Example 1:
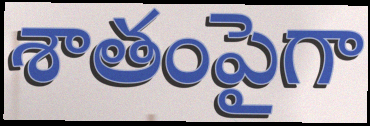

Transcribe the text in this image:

శాతంపైగా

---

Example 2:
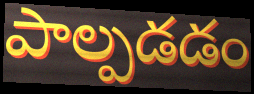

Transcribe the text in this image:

పాల్పడడం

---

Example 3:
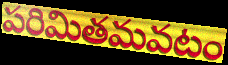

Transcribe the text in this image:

పరిమితమవటం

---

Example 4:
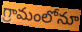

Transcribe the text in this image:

గ్రామంలోనూ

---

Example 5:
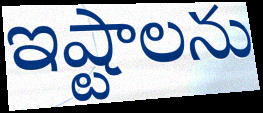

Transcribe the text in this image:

ఇష్టాలను